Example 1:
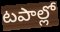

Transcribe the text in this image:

టపాల్లో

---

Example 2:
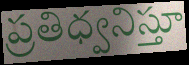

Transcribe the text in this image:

ప్రతిధ్వనిస్తూ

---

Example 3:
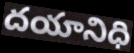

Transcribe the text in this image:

దయానిధి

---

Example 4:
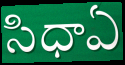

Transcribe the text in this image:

సిధాఏ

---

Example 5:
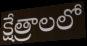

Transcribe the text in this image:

క్షేత్రాలలో